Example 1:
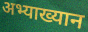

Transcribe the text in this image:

अभ्याख्यान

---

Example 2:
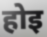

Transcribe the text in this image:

होइ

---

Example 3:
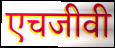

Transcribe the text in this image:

एचजीवी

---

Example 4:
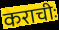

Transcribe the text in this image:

कराचीः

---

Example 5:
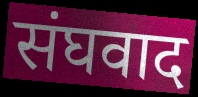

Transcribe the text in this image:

संघवाद